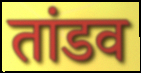
तांडव